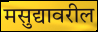
मसुद्यावरील